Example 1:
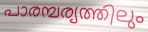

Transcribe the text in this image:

പാരമ്പര്യത്തിലും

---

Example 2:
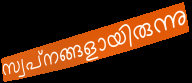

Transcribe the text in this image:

സ്വപ്‌നങ്ങളായിരുന്നു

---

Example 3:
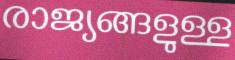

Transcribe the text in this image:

രാജ്യങ്ങളുള്ള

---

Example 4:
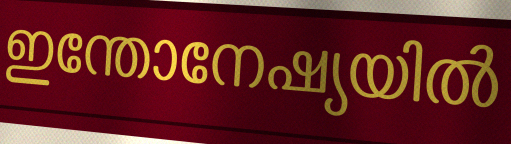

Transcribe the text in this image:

ഇന്തോനേഷ്യയിൽ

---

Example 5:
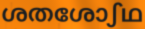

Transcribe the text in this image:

ശതശോഽഥ